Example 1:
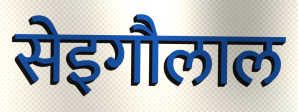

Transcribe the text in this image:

सेइगौलाल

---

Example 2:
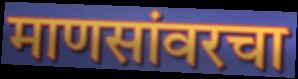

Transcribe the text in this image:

माणसांवरचा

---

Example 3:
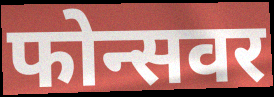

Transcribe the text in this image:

फोन्सवर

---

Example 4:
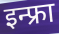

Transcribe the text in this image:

इन्फ्रा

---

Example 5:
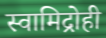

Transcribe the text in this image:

स्वामिद्रोही